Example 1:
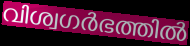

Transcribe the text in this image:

വിശ്വഗർഭത്തിൽ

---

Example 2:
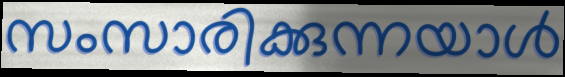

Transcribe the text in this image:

സംസാരിക്കുന്നയാൾ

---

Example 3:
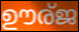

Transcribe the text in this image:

ഊര്ജ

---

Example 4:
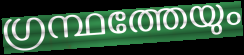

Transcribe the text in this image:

ഗ്രന്ഥത്തേയും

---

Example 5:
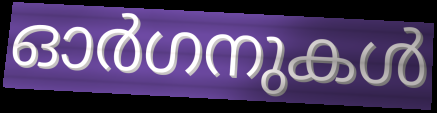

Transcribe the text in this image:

ഓർഗനുകൾ